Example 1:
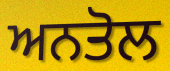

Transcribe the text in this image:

ਅਨਤੋਲ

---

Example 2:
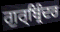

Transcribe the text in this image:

ਗੁਰ੍ਬ੍ਰਿੰਦਰ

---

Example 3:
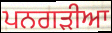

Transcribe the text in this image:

ਪਨਗੜੀਆ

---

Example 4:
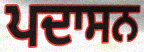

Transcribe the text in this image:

ਪਦਾਸਨ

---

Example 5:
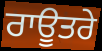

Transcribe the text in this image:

ਰਾਊਤਰੇ